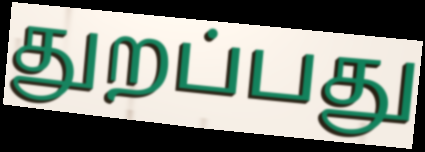
துறப்பது